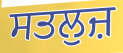
ਸਤਲੁਜ਼